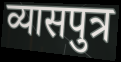
व्यासपुत्र